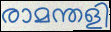
രാമന്തളി